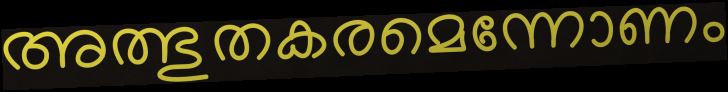
അത്ഭുതകരമെന്നോണം